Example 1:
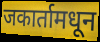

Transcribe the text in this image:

जकार्तामधून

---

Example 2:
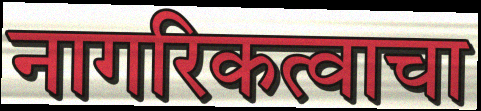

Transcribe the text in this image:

नागरिकत्वाचा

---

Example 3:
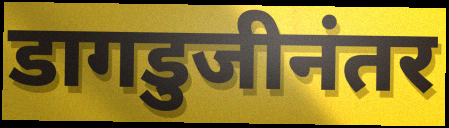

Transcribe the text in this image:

डागडुजीनंतर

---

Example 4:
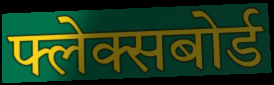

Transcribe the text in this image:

फ्लेक्सबोर्ड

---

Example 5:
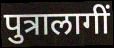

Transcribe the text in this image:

पुत्रालागीं